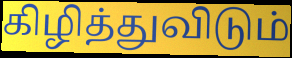
கிழித்துவிடும்